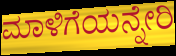
ಮಾಳಿಗೆಯನ್ನೇರಿ